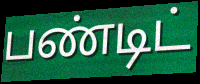
பண்டிட்